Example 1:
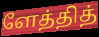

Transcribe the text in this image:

ளேத்தித்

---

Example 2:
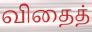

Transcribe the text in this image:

விதைத்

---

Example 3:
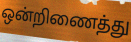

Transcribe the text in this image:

ஒன்றிணைத்து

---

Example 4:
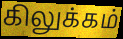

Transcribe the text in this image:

கிலுக்கம்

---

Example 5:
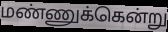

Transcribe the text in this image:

மண்ணுக்கென்று